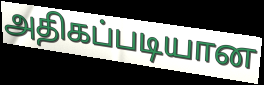
அதிகப்படியான